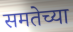
समतेच्या